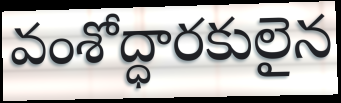
వంశోద్ధారకులైన